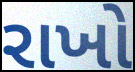
રાખો